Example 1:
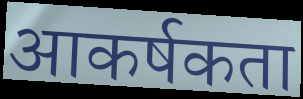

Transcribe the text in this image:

आकर्षकता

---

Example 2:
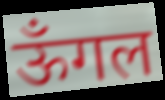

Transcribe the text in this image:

ऊँगल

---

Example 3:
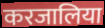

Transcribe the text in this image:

करजालिया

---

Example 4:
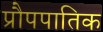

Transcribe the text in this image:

प्रौपपातिक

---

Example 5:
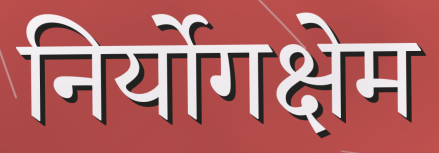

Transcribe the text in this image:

निर्योगक्षेम